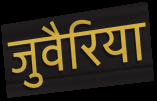
जुवैरिया